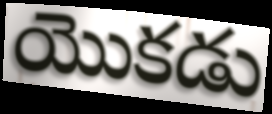
యొకడు